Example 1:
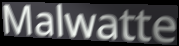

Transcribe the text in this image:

Malwatte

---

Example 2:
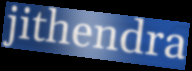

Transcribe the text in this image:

jithendra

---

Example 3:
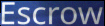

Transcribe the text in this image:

Escrow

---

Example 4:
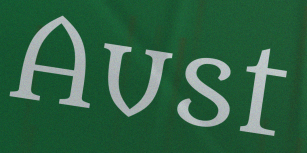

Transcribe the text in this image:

Aust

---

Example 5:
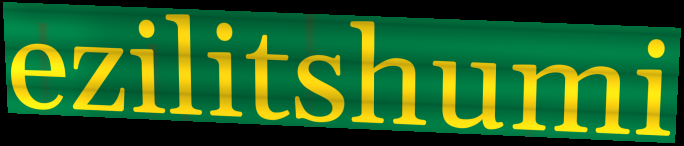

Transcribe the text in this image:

ezilitshumi